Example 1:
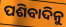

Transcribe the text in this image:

ପଶିବାଦିନୁ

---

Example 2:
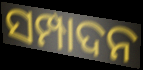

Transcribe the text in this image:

ସମ୍ପାଦନ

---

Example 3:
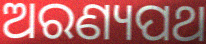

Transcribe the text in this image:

ଅରଣ୍ୟପଥ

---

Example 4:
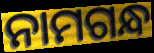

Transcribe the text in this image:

ନାମଗନ୍ଧ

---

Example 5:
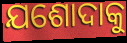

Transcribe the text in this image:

ଯଶୋଦାକୁ